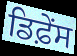
ਡਿਫ਼ੇਂਸ